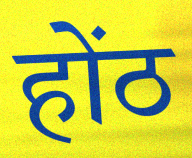
होंठ